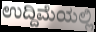
ಉದ್ದಿಮೆಯಲ್ಲಿ